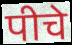
पीचे